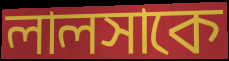
লালসাকে